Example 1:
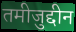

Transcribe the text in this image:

तमीजुद्दीन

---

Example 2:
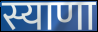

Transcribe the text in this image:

स्याणा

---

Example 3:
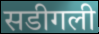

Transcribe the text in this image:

सडीगली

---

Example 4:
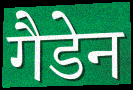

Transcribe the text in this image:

गैडेन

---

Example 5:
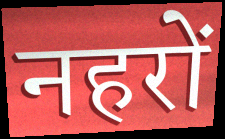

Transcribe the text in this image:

नहरों